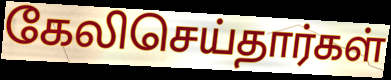
கேலிசெய்தார்கள்